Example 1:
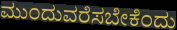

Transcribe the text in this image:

ಮುಂದುವರೆಸಬೇಕೆಂದು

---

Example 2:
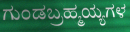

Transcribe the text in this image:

ಗುಂಡಬ್ರಹ್ಮಯ್ಯಗಳ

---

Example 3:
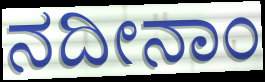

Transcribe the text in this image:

ನದೀನಾಂ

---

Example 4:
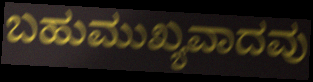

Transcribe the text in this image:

ಬಹುಮುಖ್ಯವಾದವು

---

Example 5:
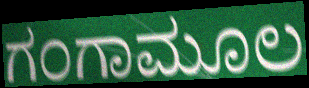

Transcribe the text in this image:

ಗಂಗಾಮೂಲ